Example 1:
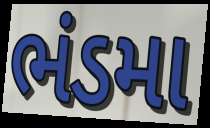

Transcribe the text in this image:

ભંડમા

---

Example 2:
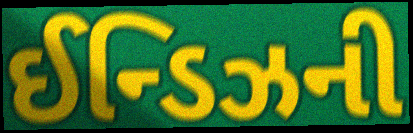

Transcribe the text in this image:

ઈન્ડિઝની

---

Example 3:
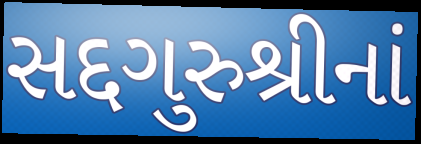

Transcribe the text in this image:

સદ્દગુરુશ્રીનાં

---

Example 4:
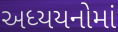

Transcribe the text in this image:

અધ્યયનોમાં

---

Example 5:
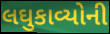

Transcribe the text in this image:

લઘુકાવ્યોની